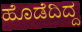
ಹೊಡೆದಿದ್ದ